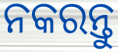
ନକରନ୍ତୁ